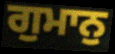
ਗੁਮਾਨੁ